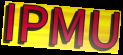
IPMU